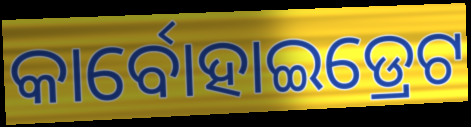
କାର୍ବୋହାଇଡ୍ରେଟ